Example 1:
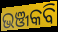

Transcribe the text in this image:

ଭଞ୍ଜକବି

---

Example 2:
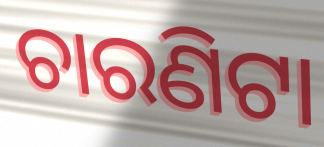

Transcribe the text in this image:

ଚାରଣିଟା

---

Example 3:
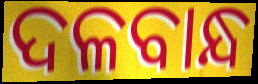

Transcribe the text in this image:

ଦଳବାନ୍ଧ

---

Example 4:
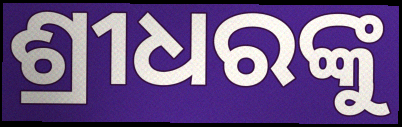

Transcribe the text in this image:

ଶ୍ରୀଧରଙ୍କୁ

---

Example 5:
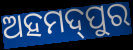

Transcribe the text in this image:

ଅହମଦ୍‌ପୁର